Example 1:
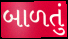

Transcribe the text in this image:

બાળતું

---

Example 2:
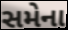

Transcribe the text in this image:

સમેના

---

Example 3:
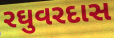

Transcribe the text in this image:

રઘુવરદાસ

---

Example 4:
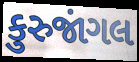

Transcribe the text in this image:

કુરુજાંગલ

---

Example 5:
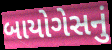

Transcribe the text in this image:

બાયોગેસનું